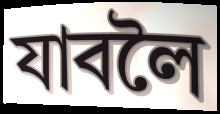
যাবলৈ